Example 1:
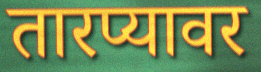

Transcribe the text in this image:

तारप्यावर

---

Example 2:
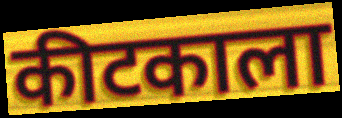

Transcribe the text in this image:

कीटकाला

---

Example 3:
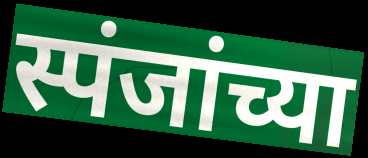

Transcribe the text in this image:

स्पंजांच्या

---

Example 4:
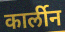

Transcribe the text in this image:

कार्लीन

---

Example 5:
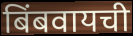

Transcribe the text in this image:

बिंबवायची